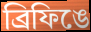
ব্রিফিঙে